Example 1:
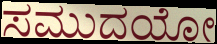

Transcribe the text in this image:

ಸಮುದಯೋ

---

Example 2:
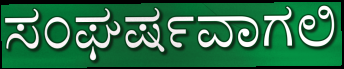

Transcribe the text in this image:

ಸಂಘರ್ಷವಾಗಲಿ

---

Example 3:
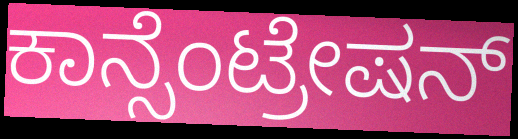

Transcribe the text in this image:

ಕಾನ್ಸೆಂಟ್ರೇಷನ್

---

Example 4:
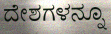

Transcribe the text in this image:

ದೇಶಗಳನ್ನೂ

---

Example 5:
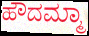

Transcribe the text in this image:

ಹೌದಮ್ಮಾ